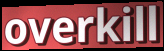
overkill